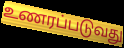
உணரப்படுவது